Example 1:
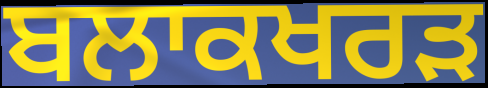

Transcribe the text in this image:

ਬਲਾਕਖਰੜ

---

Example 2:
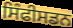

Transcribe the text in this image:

ਸਿੰਫੀਸਡਨ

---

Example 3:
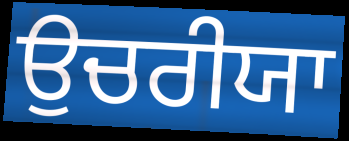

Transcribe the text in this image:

ਉਚਰੀਯਾ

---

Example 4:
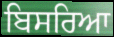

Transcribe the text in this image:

ਬਿਸਰਿਆ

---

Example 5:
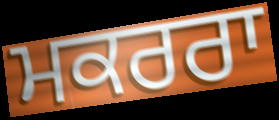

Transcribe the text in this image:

ਮਕਰਰਾ